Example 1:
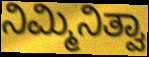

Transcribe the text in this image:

ನಿಮ್ಮಿನಿತ್ವಾ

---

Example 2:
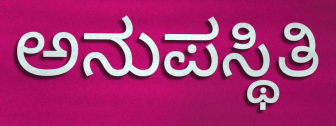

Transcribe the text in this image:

ಅನುಪಸ್ಥಿತಿ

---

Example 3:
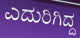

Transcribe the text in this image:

ಎದುರಿಗಿದ್ದ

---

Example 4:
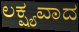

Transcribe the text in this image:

ಲಕ್ಷ್ಯವಾದ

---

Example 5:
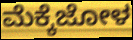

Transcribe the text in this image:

ಮೆಕ್ಕೆಜೋಳ